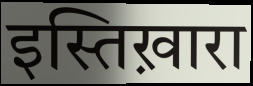
इस्तिख़ारा